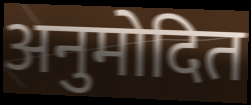
अनुमोदित